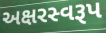
અક્ષરસ્વરૂપ